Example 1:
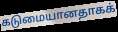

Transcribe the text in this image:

கடுமையானதாகக்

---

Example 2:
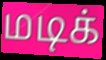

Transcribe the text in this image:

மடிக்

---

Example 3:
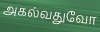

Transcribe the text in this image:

அகல்வதுவோ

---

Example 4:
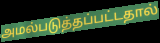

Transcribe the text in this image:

அமல்படுத்தப்பட்டதால்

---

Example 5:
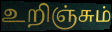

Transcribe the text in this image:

உறிஞ்சும்